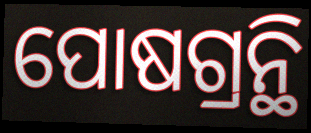
ପୋଷଗ୍ରନ୍ଥି